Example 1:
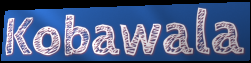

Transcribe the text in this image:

Kobawala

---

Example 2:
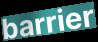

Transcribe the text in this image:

barrier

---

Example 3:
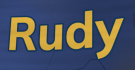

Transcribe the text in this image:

Rudy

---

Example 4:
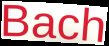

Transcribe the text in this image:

Bach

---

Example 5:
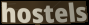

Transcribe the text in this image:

hostels